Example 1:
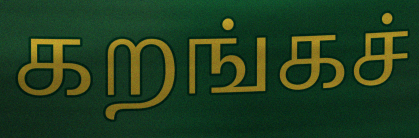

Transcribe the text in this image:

கறங்கச்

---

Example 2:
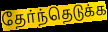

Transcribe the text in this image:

தேர்ந்தெடுக்க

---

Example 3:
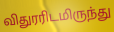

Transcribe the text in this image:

விதுரரிடமிருந்து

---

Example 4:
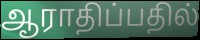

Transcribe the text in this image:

ஆராதிப்பதில்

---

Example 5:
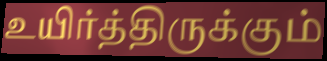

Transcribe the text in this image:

உயிர்த்திருக்கும்